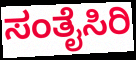
ಸಂತೈಸಿರಿ